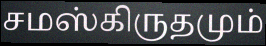
சமஸ்கிருதமும்